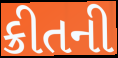
ક્રીતની